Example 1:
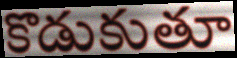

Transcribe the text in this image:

కొడుకుతూ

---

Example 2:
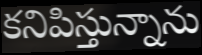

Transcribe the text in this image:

కనిపిస్తున్నాను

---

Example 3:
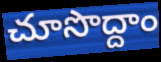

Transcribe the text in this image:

చూసొద్దాం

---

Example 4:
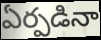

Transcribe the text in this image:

ఏర్పడినా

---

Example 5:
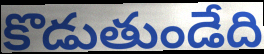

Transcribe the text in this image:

కొడుతుండేది